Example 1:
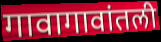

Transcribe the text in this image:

गावागावांतली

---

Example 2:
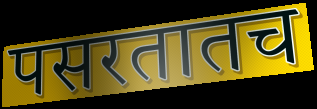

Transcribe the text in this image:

पसरतातच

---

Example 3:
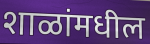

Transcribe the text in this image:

शाळांमधील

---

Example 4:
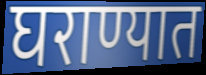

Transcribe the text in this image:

घराण्यात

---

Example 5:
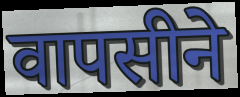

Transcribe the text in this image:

वापसीने